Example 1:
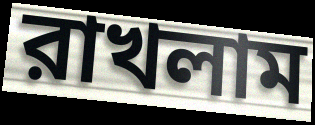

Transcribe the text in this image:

রাখলাম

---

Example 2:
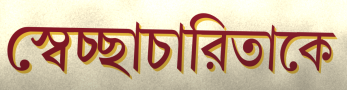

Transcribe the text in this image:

স্বেচ্ছাচারিতাকে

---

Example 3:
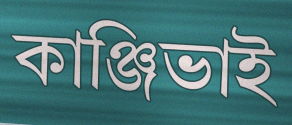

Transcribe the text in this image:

কাঞ্জিভাই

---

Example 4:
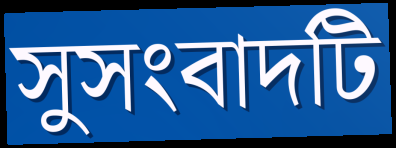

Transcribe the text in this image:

সুসংবাদটি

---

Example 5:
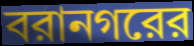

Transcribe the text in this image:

বরানগরের